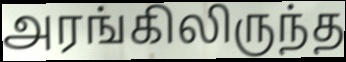
அரங்கிலிருந்த